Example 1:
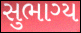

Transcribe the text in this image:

સુભાગ્ય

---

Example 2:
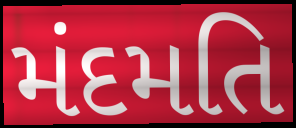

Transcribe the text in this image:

મંદમતિ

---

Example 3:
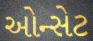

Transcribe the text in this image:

ઓન્સેટ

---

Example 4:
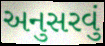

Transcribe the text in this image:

અનુસરવું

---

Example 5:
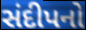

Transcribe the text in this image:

સંદીપનો